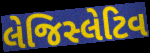
લેજિસ્લેટિવ